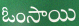
ఓంసాయి